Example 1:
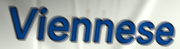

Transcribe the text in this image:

Viennese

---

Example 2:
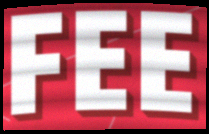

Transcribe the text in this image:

FEE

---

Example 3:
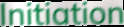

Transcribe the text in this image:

Initiation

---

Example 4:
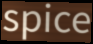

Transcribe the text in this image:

spice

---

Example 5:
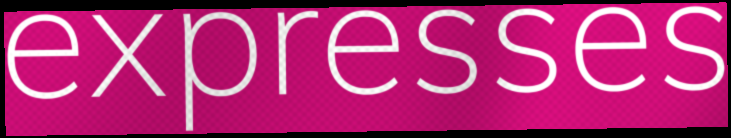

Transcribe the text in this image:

expresses